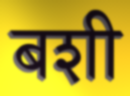
बशी